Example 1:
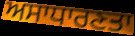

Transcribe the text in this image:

ਅਸਾਧਾਰਣਤਾ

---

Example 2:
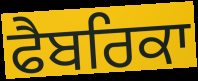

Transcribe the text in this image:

ਫੈਬਰਿਕਾ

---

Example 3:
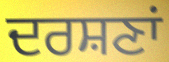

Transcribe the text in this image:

ਦਰਸ਼ਣਾਂ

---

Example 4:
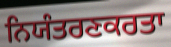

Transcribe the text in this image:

ਨਿਯੰਤਰਣਕਰਤਾ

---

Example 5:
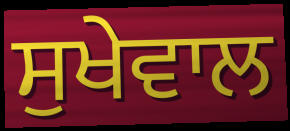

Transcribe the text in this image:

ਸੁਖੇਵਾਲ